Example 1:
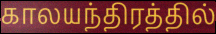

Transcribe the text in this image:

காலயந்திரத்தில்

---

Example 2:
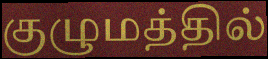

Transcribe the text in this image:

குழுமத்தில்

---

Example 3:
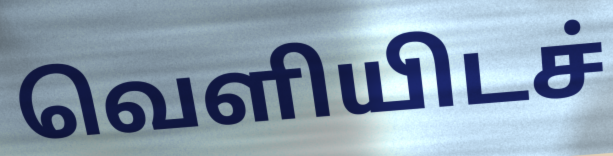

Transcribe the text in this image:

வெளியிடச்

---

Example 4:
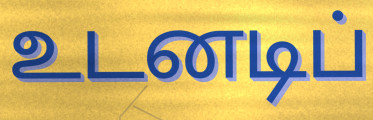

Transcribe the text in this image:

உடனடிப்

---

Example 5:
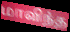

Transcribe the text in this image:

மாவிந்த